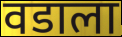
वडाला